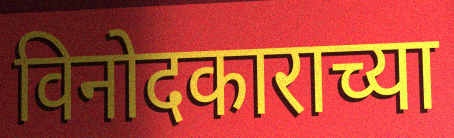
विनोदकाराच्या